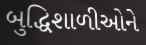
બુદ્ધિશાળીઓને